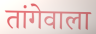
तांगेवाला